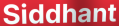
Siddhant